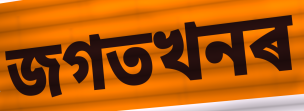
জগতখনৰ